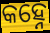
କହ୍ନେ